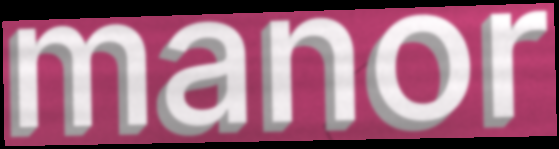
manor